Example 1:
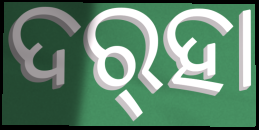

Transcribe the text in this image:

ଦର୍‌ହା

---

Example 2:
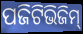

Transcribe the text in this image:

ପଜିଟିଭିଜିମ୍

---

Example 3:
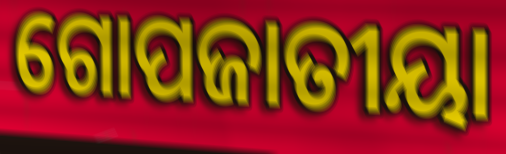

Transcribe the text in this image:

ଗୋପଜାତୀୟା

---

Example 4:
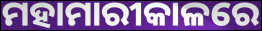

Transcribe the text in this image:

ମହାମାରୀକାଳରେ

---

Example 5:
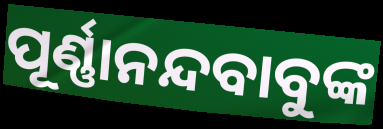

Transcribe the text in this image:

ପୂର୍ଣ୍ଣାନନ୍ଦବାବୁଙ୍କ